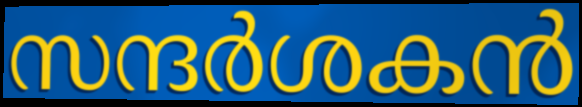
സന്ദർശകൻ